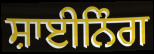
ਸ਼ਾਈਨਿੰਗ